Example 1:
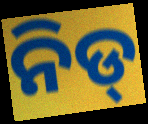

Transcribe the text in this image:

ନିଡ୍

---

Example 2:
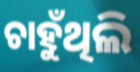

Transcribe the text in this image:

ଚାହୁଁଥିଲି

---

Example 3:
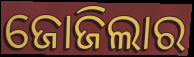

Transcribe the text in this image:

ଜୋଜିଲାର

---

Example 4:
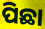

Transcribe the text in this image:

ପିଛା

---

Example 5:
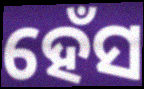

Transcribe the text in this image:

ହେଁସ